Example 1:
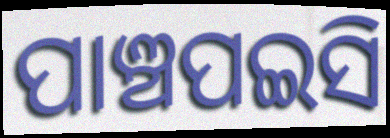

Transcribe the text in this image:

ପାଞ୍ଚପଇସି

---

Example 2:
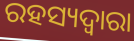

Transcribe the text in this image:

ରହସ୍ୟଦ୍ଵାରା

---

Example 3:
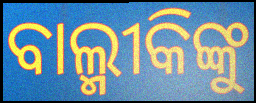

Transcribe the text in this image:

ବାଲ୍ମୀକିଙ୍କୁ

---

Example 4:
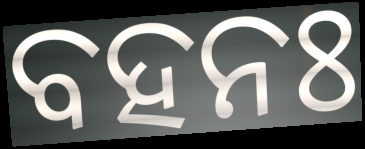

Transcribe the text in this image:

ବହନଃ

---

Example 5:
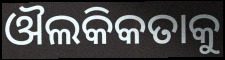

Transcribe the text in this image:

ଔଲକିକତାକୁ